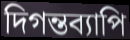
দিগন্তব্যাপি